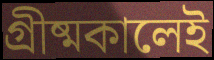
গ্রীষ্মকালেই